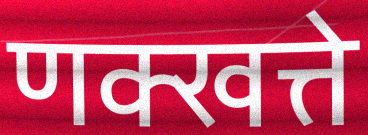
णक्खत्ते